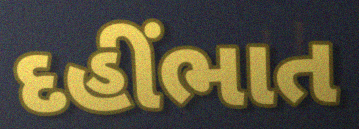
દહીંભાત